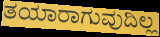
ತಯಾರಾಗುವುದಿಲ್ಲ